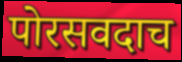
पोरसवदाच